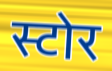
स्टोर